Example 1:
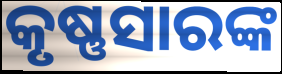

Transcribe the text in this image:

କୃଷ୍ଣସାରଙ୍କ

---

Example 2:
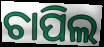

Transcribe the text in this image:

ଚାପିଲ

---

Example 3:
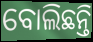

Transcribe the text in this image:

ବୋଲିଛନ୍ତି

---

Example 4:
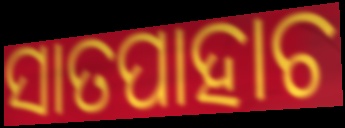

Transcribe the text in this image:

ସାତପାହାଚ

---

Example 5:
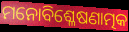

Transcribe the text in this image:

ମନୋବିଶ୍ଳେଷଣାତ୍ମକ